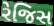
રેજિસ